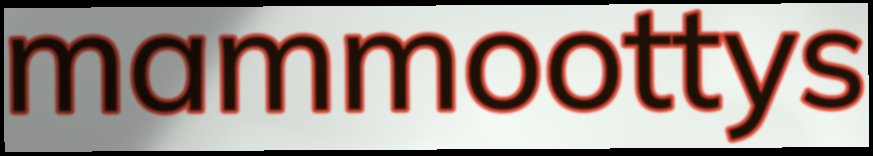
mammoottys